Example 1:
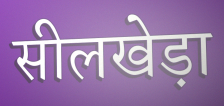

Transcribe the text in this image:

सीलखेड़ा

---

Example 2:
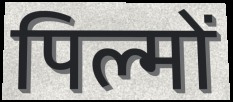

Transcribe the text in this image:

पिल्मों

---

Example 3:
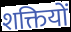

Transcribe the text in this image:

शक्तियों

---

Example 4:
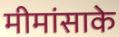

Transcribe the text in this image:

मीमांसाके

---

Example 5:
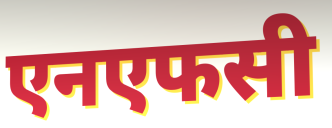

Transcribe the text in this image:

एनएफसी